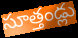
సూత్తండ్లు